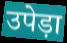
उपेड़ा